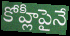
కోహ్లీపైనే